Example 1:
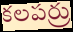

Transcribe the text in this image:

కలపర్రు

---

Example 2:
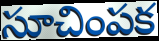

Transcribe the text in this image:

సూచింపక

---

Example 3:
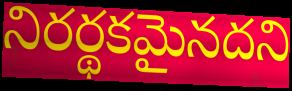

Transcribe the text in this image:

నిరర్థకమైనదని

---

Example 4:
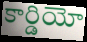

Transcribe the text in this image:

కార్డియో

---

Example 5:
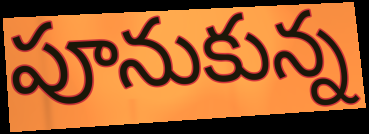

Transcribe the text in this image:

పూనుకున్న